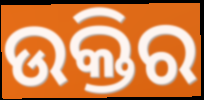
ଉକ୍ତିର